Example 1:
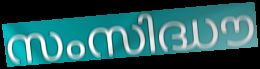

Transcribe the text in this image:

സംസിദ്ധൗ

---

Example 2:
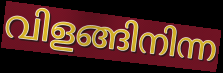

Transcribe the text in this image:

വിളങ്ങിനിന്ന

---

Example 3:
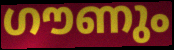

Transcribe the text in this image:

ഗൗണും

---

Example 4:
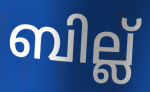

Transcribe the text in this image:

ബില്ല്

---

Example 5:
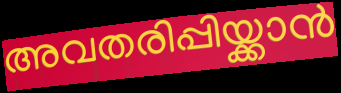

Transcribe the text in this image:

അവതരിപ്പിയ്ക്കാൻ